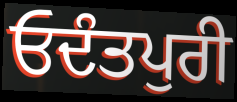
ਓਦੰਤਪੁਰੀ